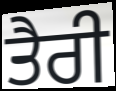
ਤੈਰੀ